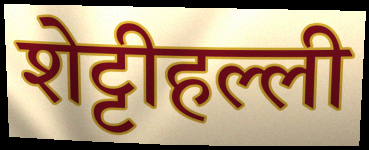
शेट्टीहल्ली